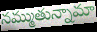
నమ్ముతున్నామా